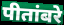
पीतांबरे